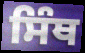
ਸਿੰਥ